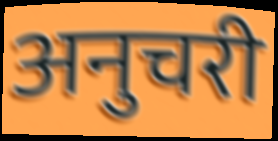
अनुचरी